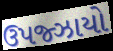
ઉપજ્ઝાયો